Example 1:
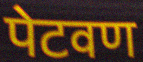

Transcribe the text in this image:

पेटवण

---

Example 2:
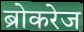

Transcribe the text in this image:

ब्रोकरेज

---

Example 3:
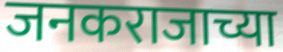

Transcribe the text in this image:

जनकराजाच्या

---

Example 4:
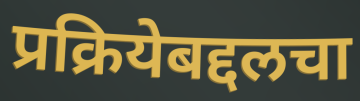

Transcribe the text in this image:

प्रक्रियेबद्दलचा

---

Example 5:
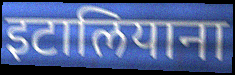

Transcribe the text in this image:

इटालियाना